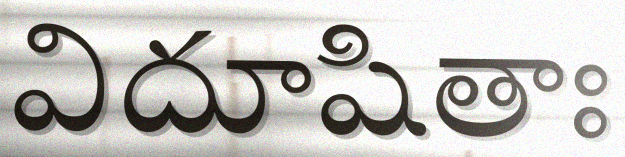
విదూషితాః